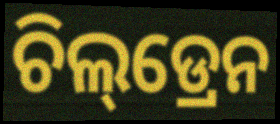
ଚିଲ୍‌ଡ୍ରେନ